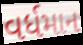
વર્ધમાન